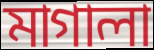
মাগালা